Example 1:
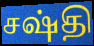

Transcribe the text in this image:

சஷ்தி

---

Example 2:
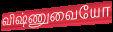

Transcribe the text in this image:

விஷ்ணுவையோ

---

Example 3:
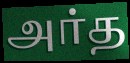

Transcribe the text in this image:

அர்த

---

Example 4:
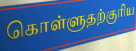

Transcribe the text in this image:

கொள்ளுதற்குரிய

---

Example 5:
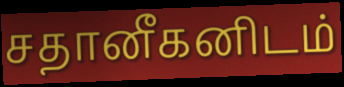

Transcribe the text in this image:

சதானீகனிடம்